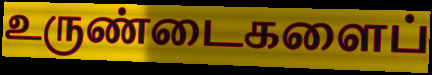
உருண்டைகளைப்